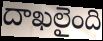
దాఖలైంది